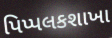
પિપ્પલકશાખા